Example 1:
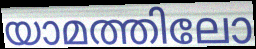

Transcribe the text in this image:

യാമത്തിലോ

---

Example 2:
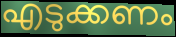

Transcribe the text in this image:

എടുക്കണം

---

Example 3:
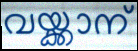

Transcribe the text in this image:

വയ്ക്കാന്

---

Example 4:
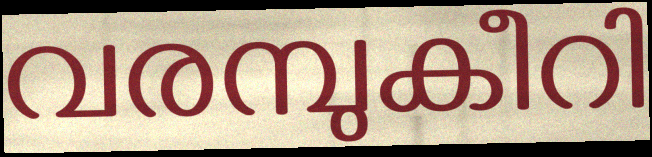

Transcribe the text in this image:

വരമ്പുകീറി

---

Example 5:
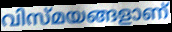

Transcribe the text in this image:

വിസ്മയങ്ങളാണ്